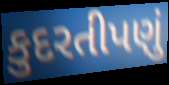
કુદરતીપણું